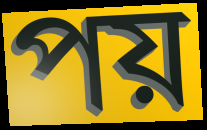
পয়